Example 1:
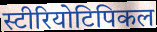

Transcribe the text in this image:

स्टीरियोटिपिकल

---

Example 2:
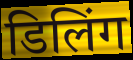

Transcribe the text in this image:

डिलिंग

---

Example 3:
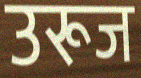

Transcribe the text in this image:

उरूज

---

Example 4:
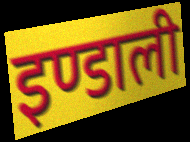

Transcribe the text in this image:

इण्डाली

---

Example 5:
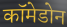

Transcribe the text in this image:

कॉमेडोन